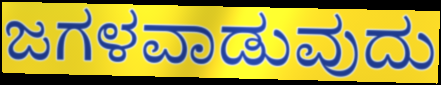
ಜಗಳವಾಡುವುದು